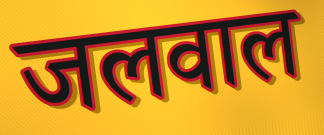
जलवाल